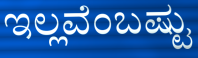
ಇಲ್ಲವೆಂಬಷ್ಟು